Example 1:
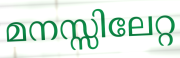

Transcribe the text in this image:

മനസ്സിലേറ്റ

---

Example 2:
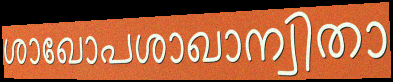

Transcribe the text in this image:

ശാഖോപശാഖാന്വിതാ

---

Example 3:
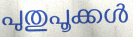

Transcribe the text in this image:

പുതുപൂക്കൾ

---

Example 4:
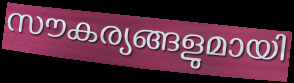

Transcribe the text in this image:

സൗകര്യങ്ങളുമായി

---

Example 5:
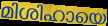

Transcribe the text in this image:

മിശിഹായെ